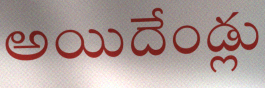
అయిదేండ్లు